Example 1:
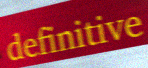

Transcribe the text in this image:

definitive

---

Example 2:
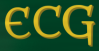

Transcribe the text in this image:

ECG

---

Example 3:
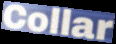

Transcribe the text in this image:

Collar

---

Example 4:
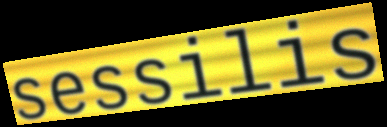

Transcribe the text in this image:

sessilis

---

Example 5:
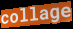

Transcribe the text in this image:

collage